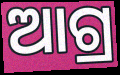
ଆଗ୍ର